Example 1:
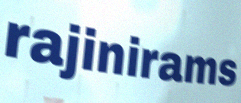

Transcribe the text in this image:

rajinirams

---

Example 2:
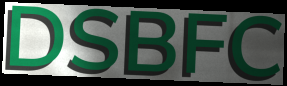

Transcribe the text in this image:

DSBFC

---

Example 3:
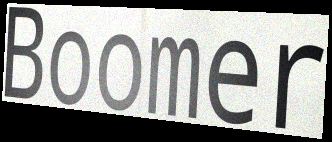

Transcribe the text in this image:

Boomer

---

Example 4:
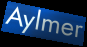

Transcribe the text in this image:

Aylmer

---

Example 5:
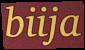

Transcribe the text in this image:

biija